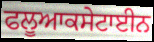
ਫਲੂਆਕਸੇਟਾਈਨ